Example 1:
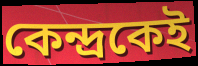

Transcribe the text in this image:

কেন্দ্রকেই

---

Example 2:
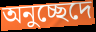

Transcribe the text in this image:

অনুচ্ছেদে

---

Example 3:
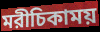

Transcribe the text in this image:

মরীচিকাময়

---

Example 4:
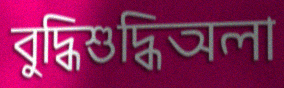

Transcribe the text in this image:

বুদ্ধিশুদ্ধিঅলা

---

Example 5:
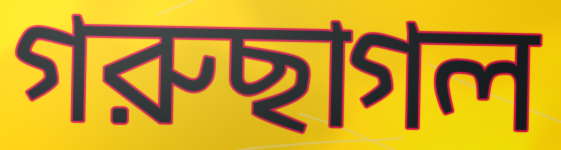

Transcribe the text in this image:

গরুছাগল